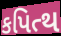
કપિત્થ